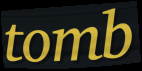
tomb